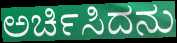
ಅರ್ಚಿಸಿದನು